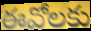
ఈవోలకు